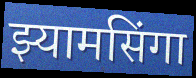
झ्यामसिंगा